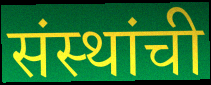
संस्थांची